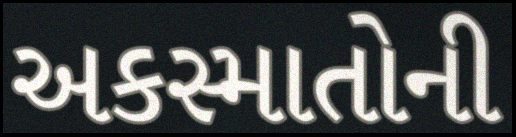
અકસ્માતોની